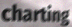
charting